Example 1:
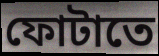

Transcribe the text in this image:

ফোটাতে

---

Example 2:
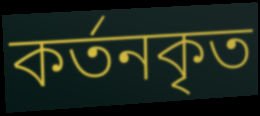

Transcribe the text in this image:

কর্তনকৃত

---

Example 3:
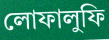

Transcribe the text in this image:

লোফালুফি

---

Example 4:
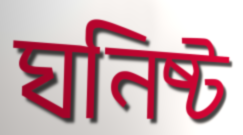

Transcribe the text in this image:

ঘনিষ্ট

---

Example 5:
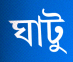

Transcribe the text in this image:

ঘাটু